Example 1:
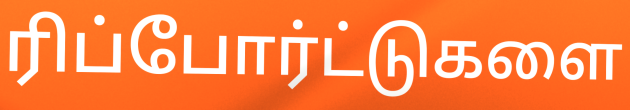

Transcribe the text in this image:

ரிப்போர்ட்டுகளை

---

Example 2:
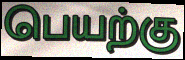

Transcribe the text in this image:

பெயற்கு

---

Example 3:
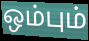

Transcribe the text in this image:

ஒம்பும்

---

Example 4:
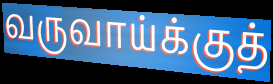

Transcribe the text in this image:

வருவாய்க்குத்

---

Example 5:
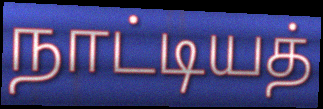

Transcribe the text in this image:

நாட்டியத்